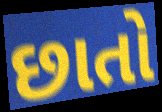
છાતો